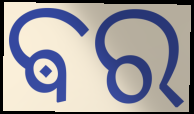
ଵର